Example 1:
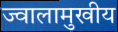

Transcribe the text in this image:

ज्वालामुखीय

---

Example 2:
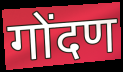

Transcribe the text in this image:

गोंदण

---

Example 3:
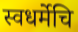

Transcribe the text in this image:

स्वधर्मेचि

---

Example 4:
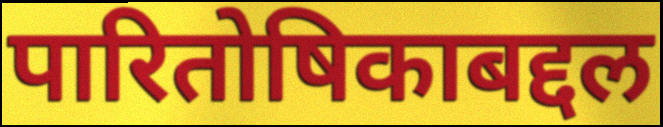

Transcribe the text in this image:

पारितोषिकाबद्दल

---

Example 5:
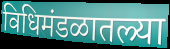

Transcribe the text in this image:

विधिमंडळातल्या